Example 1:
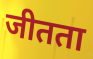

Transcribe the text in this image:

जीतता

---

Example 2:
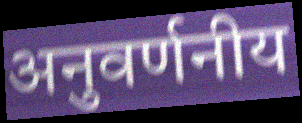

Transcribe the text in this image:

अनुवर्णनीय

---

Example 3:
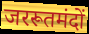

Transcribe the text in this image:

जररूतमंदों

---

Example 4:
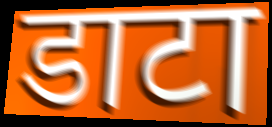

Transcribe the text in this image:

डाटा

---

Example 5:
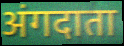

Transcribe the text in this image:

अंगदाता